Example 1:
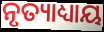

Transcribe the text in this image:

ନୃତ୍ୟାଧ୍ୟାୟ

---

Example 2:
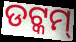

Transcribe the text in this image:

ଡଟ୍କମ୍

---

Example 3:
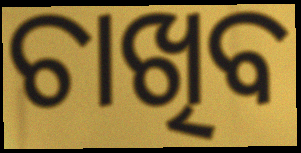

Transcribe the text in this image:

ଚାଖିବ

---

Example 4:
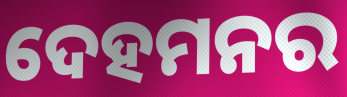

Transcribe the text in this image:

ଦେହମନର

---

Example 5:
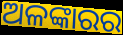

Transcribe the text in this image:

ଅଳଙ୍କାରର